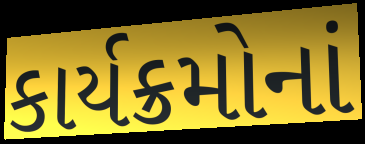
કાર્યક્રમોનાં